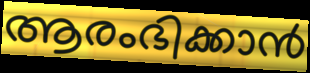
ആരംഭിക്കാൻ